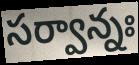
సర్వాన్నః